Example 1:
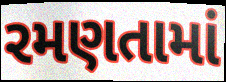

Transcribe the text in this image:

રમણતામાં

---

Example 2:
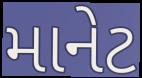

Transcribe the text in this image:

માનેટ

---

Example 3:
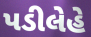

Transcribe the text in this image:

પડીલેહે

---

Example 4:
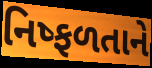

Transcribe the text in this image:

નિષ્ફળતાને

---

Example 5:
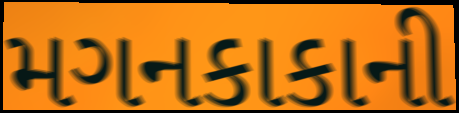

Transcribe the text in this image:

મગનકાકાની